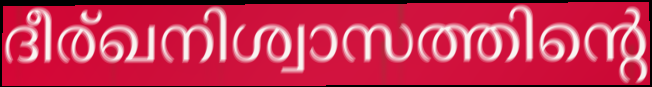
ദീര്ഖനിശ്വാസത്തിന്റെ